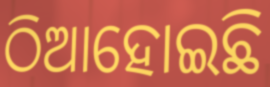
ଠିଆହୋଇଛି